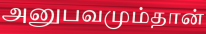
அனுபவமும்தான்